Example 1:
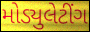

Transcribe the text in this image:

મોડ્યુલેટીંગ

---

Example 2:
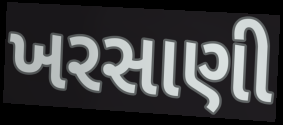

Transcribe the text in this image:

ખરસાણી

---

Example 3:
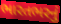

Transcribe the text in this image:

ભારતભરનું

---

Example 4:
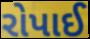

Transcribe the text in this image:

રોપાઈ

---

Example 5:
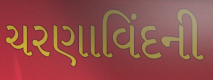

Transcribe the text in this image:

ચરણાવિંદની